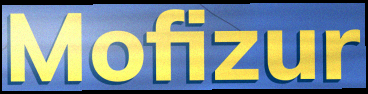
Mofizur